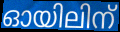
ഓയിലിന്